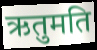
ऋतुमति